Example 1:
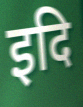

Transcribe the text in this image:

इदि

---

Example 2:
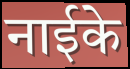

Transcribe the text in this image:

नाईके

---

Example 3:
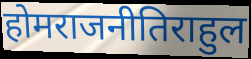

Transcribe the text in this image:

होमराजनीतिराहुल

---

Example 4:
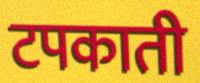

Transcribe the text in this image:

टपकाती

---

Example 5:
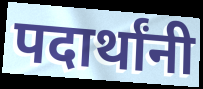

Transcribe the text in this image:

पदार्थांनी